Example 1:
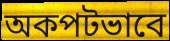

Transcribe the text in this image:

অকপটভাবে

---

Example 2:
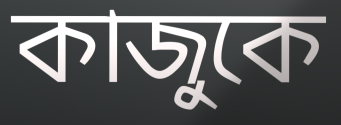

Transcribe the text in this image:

কাজুকে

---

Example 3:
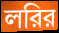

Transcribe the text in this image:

লরির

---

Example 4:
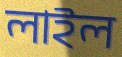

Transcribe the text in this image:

লাইল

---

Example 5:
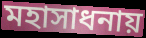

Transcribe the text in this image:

মহাসাধনায়